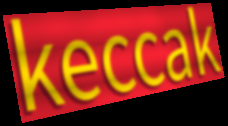
keccak